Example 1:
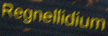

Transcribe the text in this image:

Regnellidium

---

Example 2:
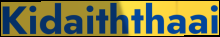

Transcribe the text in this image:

Kidaiththaai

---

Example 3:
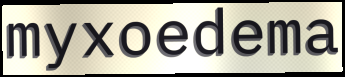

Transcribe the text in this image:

myxoedema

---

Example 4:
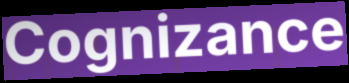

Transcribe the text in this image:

Cognizance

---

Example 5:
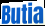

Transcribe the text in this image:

Butia